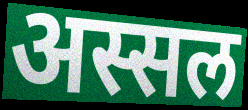
अस्सल